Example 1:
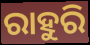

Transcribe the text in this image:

ରାହୁରି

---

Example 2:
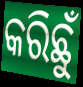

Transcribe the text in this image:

କରିଛୁଁ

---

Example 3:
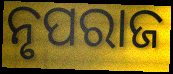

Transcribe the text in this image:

ନୃପରାଜ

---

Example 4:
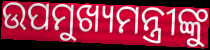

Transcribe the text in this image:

ଉପମୁଖ୍ୟମନ୍ତ୍ରୀଙ୍କୁ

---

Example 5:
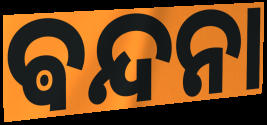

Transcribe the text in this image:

ଵନ୍ଦନା